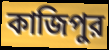
কাজিপুর